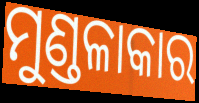
ମୁଣ୍ଡଳାକାର